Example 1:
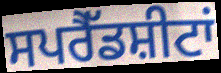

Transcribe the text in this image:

ਸਪਰੈੱਡਸ਼ੀਟਾਂ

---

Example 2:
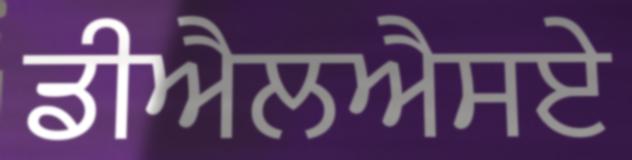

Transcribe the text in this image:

ਡੀਐਲਐਸਏ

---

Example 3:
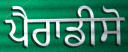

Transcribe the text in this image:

ਪੈਰਾਡੀਸੋ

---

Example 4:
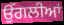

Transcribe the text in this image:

ਉੱਗਲੀਆਂ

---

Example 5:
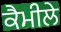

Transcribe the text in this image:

ਕੈਮੀਲੇ